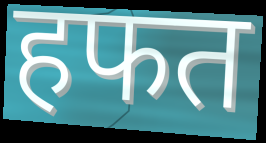
हफत